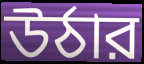
উঠার